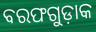
ବରଫଗୁଡ଼ାକ